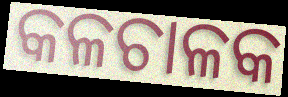
କଳଚାଳକ